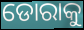
ଡୋରାକୁ